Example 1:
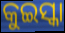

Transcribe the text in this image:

କୁଇସ୍କା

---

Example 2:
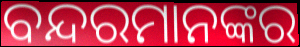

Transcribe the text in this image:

ବନ୍ଦରମାନଙ୍କର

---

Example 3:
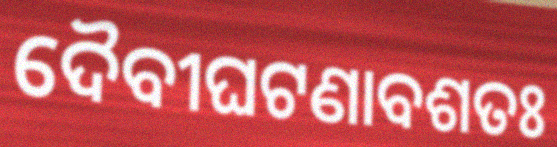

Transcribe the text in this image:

ଦୈବୀଘଟଣାବଶତଃ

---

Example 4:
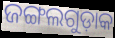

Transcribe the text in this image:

ଜଙ୍ଗଲଗୁଡ଼ାକ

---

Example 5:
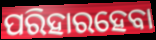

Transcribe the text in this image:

ପରିହାରହେବା